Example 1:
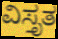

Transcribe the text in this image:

ವಿಸ್ತೃತ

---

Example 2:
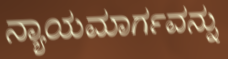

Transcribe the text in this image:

ನ್ಯಾಯಮಾರ್ಗವನ್ನು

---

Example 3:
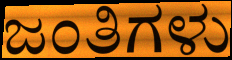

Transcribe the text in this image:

ಜಂತಿಗಳು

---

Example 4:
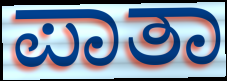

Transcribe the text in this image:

ಪಾತಾ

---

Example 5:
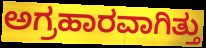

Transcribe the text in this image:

ಅಗ್ರಹಾರವಾಗಿತ್ತು